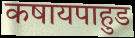
कषायपाहुड